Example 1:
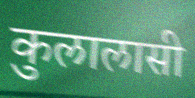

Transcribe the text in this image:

कुलालासी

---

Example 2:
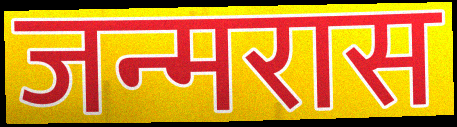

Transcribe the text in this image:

जन्मरास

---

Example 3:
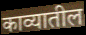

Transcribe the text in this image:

काव्यातील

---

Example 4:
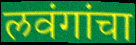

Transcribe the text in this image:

लवंगांचा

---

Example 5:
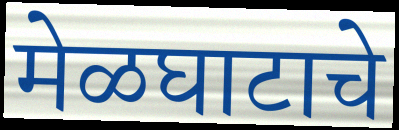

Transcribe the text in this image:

मेळघाटाचे